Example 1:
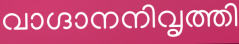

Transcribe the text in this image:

വാഗ്ദാനനിവൃത്തി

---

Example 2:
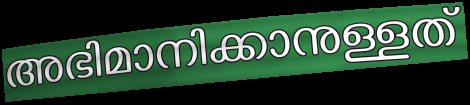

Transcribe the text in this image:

അഭിമാനിക്കാനുള്ളത്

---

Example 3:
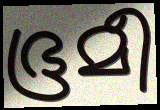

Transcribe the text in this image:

ഭൂമീ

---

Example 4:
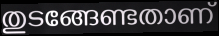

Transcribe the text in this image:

തുടങ്ങേണ്ടതാണ്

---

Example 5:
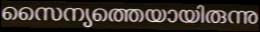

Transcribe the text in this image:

സൈന്യത്തെയായിരുന്നു